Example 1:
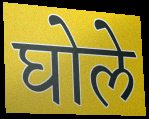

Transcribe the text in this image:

घोले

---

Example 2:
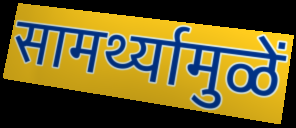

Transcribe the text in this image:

सामर्थ्यामुळें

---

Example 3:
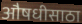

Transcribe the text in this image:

औषधीसाठा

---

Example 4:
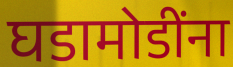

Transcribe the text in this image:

घडामोडींना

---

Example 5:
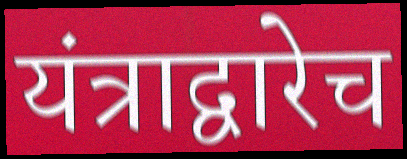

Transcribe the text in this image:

यंत्राद्वारेच